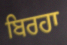
ਬਿਰਹਾ